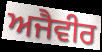
ਅਜੈਵੀਰ